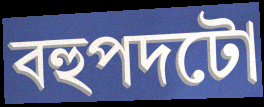
বহুপদটো